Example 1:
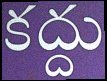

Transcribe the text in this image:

కద్దు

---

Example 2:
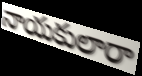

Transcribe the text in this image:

నాయకులారా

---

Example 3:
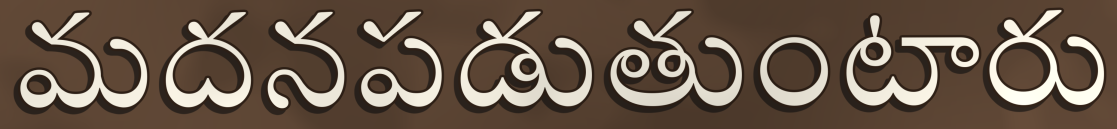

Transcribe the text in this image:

మదనపడుతుంటారు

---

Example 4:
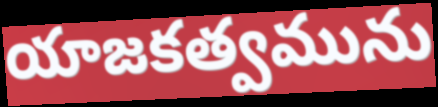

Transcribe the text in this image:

యాజకత్వమును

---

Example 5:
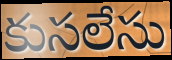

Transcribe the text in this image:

కుసలేసు